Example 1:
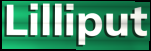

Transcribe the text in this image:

Lilliput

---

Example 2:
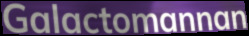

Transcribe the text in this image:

Galactomannan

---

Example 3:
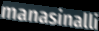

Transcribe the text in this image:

manasinalli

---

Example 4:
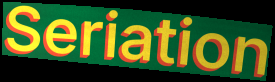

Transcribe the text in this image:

Seriation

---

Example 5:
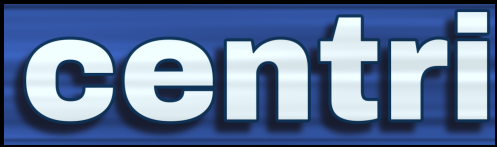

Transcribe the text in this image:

centri